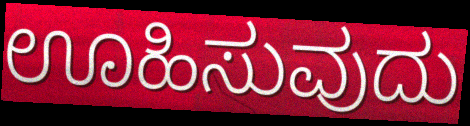
ಊಹಿಸುವುದು